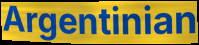
Argentinian